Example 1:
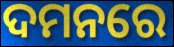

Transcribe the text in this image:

ଦମନରେ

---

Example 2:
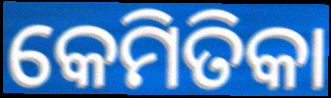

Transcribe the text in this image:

କେମିତିକା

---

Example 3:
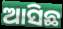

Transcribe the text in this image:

ଆସିଛ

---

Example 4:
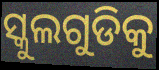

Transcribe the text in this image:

ସ୍କୁଲଗୁଡିକୁ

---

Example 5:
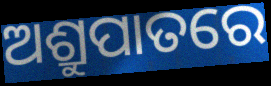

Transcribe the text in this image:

ଅଶ୍ରୁପାତରେ